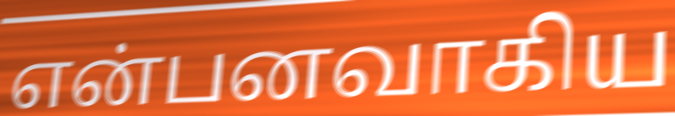
என்பனவாகிய